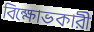
বিক্ষোভকারী